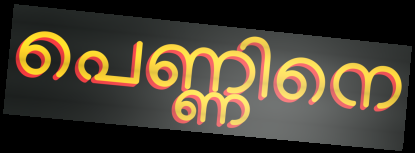
പെണ്ണിനെ